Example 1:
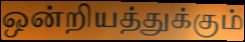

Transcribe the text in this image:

ஒன்றியத்துக்கும்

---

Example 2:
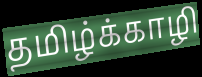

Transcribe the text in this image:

தமிழ்க்காழி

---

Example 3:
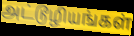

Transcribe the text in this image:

அட்டூழியங்கள்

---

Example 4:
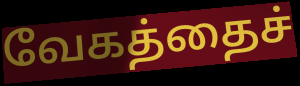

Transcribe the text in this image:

வேகத்தைச்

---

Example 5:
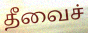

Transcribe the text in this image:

தீவைச்